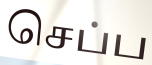
செப்ப